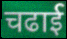
चढाई